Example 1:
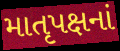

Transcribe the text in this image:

માતૃપક્ષનાં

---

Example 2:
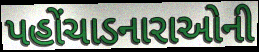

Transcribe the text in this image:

પહોંચાડનારાઓની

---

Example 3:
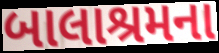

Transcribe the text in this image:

બાલાશ્રમના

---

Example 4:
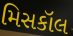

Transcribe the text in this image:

મિસકૉલ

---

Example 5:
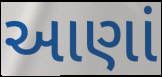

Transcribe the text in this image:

આણાં